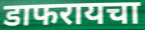
डाफरायचा